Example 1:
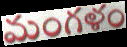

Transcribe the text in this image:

మంగళం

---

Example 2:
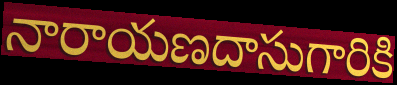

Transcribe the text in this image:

నారాయణదాసుగారికి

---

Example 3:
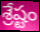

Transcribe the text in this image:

శ్రేష్టం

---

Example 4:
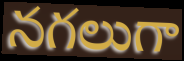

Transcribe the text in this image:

నగలుగా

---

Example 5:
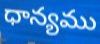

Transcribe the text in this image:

ధాన్యము